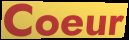
Coeur